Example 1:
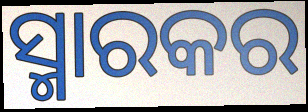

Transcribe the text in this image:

ସ୍ମାରକର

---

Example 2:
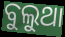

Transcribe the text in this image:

ବୁଲୁଥା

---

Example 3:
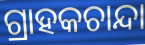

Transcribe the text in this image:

ଗ୍ରାହକଚାନ୍ଦା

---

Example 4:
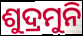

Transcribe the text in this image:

ଶୁଦ୍ରମୁନି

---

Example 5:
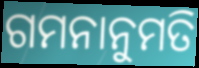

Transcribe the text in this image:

ଗମନାନୁମତି